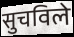
सुचविले